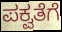
ಪಕ್ವತೆಗೆ